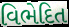
વિભેદિત